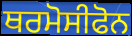
ਥਰਮੋਸੀਫੋਨ